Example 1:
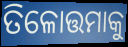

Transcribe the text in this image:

ତିଳୋତ୍ତମାକୁ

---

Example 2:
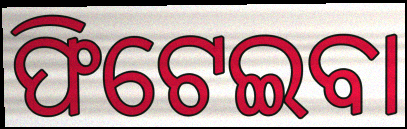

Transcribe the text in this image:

ଫିଟେଇବା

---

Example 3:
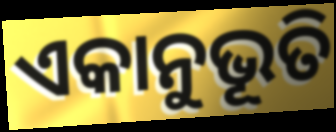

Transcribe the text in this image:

ଏକାନୁଭୂତି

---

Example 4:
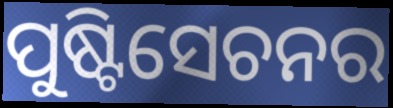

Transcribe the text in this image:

ପୁଷ୍ଟିସେଚନର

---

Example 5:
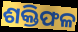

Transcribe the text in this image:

ଶକ୍ତିଫଳ